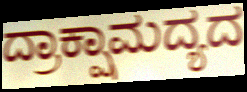
ದ್ರಾಕ್ಷಾಮದ್ಯದ